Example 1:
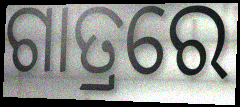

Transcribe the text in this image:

ଗାତ୍ରରେ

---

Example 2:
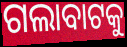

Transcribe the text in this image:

ଗଲାବାଟକୁ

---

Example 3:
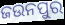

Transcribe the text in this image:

ଜଉନପୁର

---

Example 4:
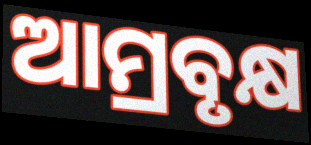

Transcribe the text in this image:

ଆମ୍ରବୃକ୍ଷ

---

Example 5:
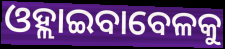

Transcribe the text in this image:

ଓହ୍ଲାଇବାବେଳକୁ